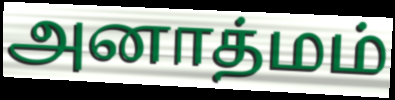
அனாத்மம்